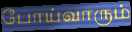
போய்வாரும்